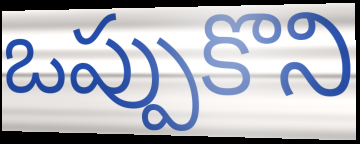
ఒప్పుకొని